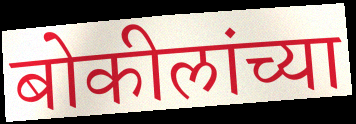
बोकीलांच्या